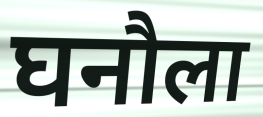
घनौला